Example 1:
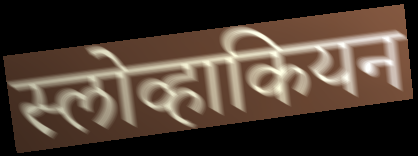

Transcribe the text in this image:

स्लोव्हाकियन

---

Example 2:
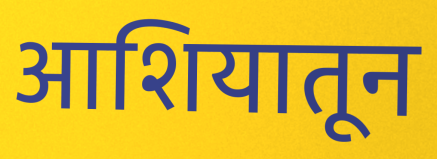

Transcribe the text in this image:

आशियातून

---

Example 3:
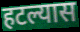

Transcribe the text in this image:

हटल्यास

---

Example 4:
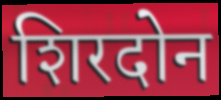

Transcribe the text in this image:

शिरदोन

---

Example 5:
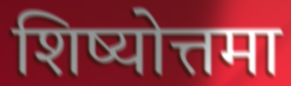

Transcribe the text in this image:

शिष्योत्तमा